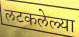
लटकलेल्या